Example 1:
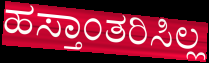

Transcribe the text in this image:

ಹಸ್ತಾಂತರಿಸಿಲ್ಲ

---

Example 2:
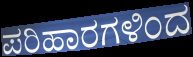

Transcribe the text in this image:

ಪರಿಹಾರಗಳಿಂದ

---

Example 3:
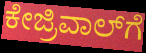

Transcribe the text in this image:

ಕೇಜ್ರಿವಾಲ್‍ಗೆ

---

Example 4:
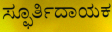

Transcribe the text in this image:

ಸ್ಫೂರ್ತಿದಾಯಕ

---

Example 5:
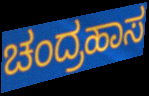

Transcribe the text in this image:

ಚಂದ್ರಹಾಸ